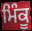
ਮਿੰਕੂ